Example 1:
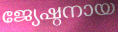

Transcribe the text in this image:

ജ്യേഷ്ഠനായ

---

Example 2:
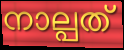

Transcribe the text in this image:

നാല്പത്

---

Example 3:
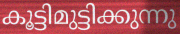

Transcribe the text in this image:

കൂട്ടിമുട്ടിക്കുന്നു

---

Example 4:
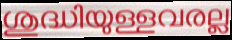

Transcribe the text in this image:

ശുദ്ധിയുള്ളവരല്ല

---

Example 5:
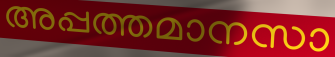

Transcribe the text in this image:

അപ്പത്തമാനസാ